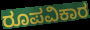
ರೂಪವಿಕಾರ